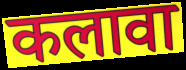
कलावा